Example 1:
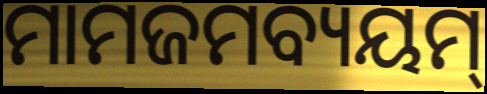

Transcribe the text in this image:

ମାମଜମବ୍ୟୟମ୍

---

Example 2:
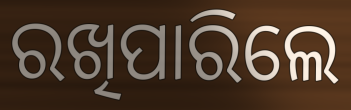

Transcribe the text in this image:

ରଖିପାରିଲେ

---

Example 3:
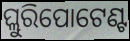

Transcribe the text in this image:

ପ୍ଲୁରିପୋଟେଣ୍ଟ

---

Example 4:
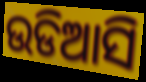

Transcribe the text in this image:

ଉଡିଆସି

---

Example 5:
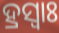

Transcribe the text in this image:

ହ୍ରସ୍ଵାଃ